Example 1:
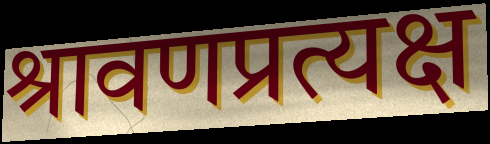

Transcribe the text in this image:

श्रावणप्रत्यक्ष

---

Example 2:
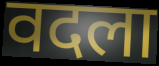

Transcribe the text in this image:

वदला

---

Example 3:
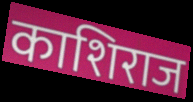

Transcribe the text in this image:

काशिराज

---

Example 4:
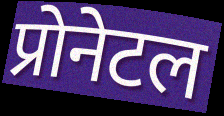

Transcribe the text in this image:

प्रोनेटल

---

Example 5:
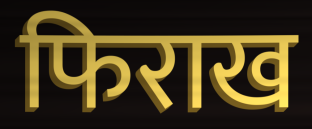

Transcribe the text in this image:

फिराख